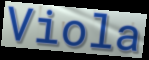
Viola